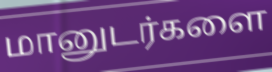
மானுடர்களை